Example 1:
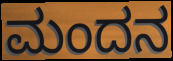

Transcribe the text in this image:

ಮಂದನ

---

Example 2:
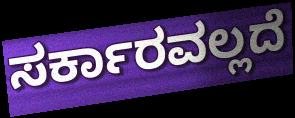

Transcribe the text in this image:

ಸರ್ಕಾರವಲ್ಲದೆ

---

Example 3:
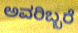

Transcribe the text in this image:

ಅವರಿಬ್ಬರೆ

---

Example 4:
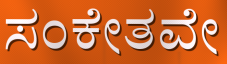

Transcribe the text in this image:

ಸಂಕೇತವೇ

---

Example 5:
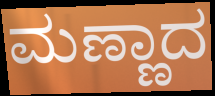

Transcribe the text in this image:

ಮಣ್ಣಾದ